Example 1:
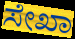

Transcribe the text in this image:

ಸೇಖಾ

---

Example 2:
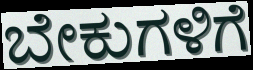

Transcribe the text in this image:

ಬೇಕುಗಳಿಗೆ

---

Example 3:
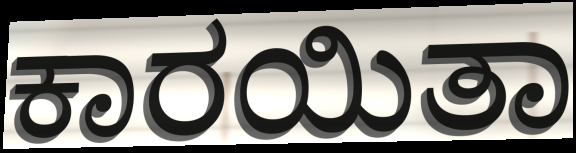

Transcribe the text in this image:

ಕಾರಯಿತಾ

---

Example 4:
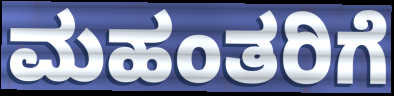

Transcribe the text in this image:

ಮಹಂತರಿಗೆ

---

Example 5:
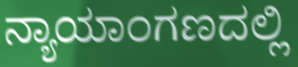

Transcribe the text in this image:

ನ್ಯಾಯಾಂಗಣದಲ್ಲಿ